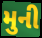
મુની